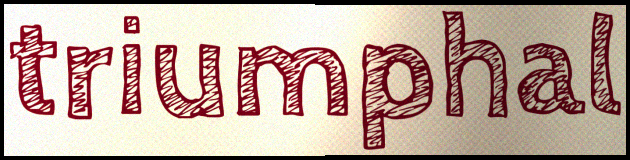
triumphal